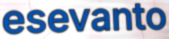
esevanto